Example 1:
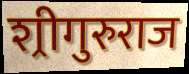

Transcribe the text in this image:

श्रीगुरुराज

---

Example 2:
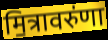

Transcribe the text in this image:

मि॒त्रावरु॑णा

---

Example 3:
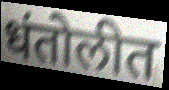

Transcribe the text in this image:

धंतोलीत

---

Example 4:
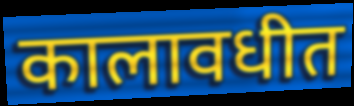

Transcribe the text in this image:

कालावधीत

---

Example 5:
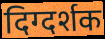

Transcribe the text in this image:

दिग्दर्शक